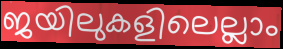
ജയിലുകളിലെല്ലാം